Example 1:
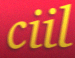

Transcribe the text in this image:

ciil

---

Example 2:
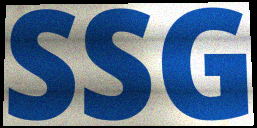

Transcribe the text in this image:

SSG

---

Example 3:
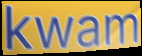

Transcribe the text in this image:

kwam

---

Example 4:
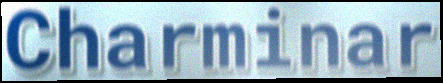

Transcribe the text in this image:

Charminar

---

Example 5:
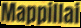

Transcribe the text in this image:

Mappillai